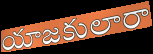
యాజకులారా